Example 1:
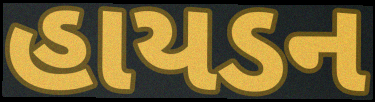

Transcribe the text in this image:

હાયડન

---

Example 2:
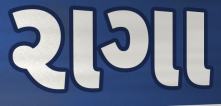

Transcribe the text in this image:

રાગા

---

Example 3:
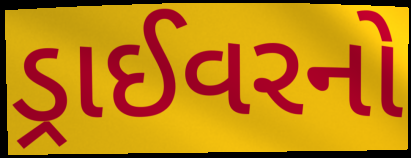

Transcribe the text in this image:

ડ્રાઈવરનો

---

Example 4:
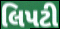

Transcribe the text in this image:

લિપટી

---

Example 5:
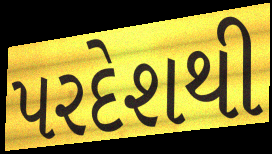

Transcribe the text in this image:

પરદેશથી